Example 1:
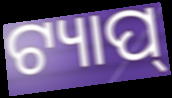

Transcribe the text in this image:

ଟ୍ୟାପ୍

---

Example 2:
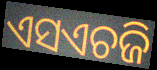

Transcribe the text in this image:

ଏସଏଚଜି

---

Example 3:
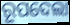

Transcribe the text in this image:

ରୂପଦେଲା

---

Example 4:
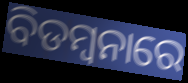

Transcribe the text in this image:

ବିଡମ୍ବନାରେ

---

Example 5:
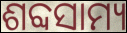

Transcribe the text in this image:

ଶବ୍ଦସାମ୍ୟ